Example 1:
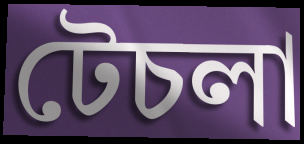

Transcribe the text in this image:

টেচলা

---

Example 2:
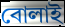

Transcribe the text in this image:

বোলাই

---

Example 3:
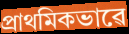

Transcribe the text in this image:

প্ৰাথমিকভাৱে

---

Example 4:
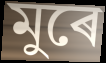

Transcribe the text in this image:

মুৰে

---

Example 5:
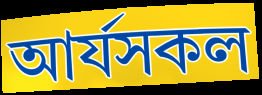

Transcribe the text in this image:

আৰ্যসকল